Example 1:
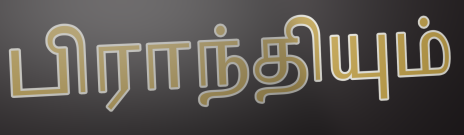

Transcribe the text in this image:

பிராந்தியும்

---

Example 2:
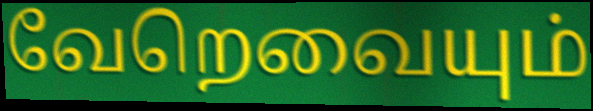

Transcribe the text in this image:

வேறெவையும்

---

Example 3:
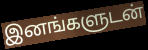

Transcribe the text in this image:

இனங்களுடன்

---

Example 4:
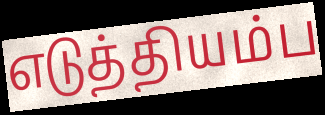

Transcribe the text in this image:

எடுத்தியம்ப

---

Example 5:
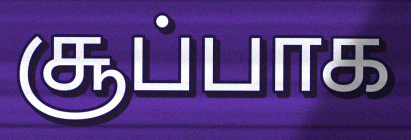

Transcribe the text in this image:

சூப்பாக